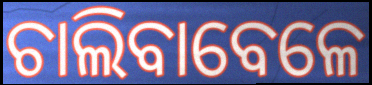
ଚାଲିବାବେଳେ